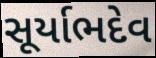
સૂર્યાભદેવ